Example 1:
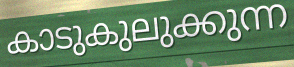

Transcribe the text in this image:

കാടുകുലുക്കുന്ന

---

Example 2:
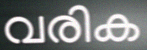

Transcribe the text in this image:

വരിക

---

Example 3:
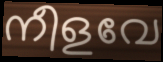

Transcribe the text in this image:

നീളവേ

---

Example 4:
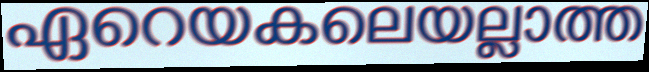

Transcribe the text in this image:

ഏറെയകലെയല്ലാത്ത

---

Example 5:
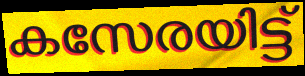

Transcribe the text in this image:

കസേരയിട്ട്